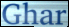
Ghar